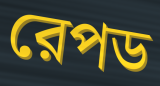
রেপড